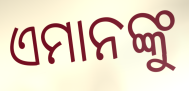
ଏମାନଙ୍କୁ